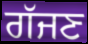
ਗੱਜਣ